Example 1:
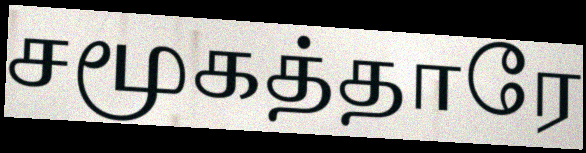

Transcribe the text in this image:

சமூகத்தாரே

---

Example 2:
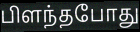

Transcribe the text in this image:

பிளந்தபோது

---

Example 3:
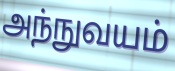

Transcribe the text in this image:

அந்நுவயம்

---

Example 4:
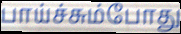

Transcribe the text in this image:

பாய்ச்சும்போது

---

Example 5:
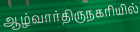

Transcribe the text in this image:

ஆழ்வார்திருநகரியில்